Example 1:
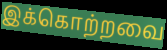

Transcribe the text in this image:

இக்கொற்றவை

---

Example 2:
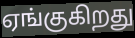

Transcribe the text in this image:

ஏங்குகிறது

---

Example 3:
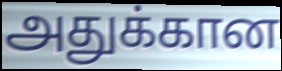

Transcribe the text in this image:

அதுக்கான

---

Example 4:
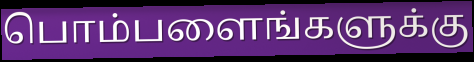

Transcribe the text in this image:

பொம்பளைங்களுக்கு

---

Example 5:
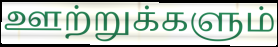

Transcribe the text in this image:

ஊற்றுக்களும்